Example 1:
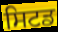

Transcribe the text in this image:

ਸਿਟਡ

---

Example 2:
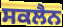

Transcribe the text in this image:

ਸਕਲੈਨ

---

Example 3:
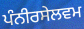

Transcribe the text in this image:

ਪੰਨੀਰਸੇਲਵਮ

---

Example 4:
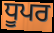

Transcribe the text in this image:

ਧੂਪਰ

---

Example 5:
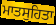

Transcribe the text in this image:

ਮਾਤਸੁਹਿਤਾ